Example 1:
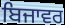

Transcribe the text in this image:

ਬਿਜਾਵਰ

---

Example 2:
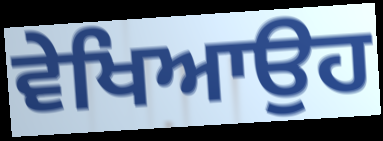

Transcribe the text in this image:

ਵੇਖਿਆਉਹ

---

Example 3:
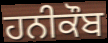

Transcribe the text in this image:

ਹਨੀਕੌਬ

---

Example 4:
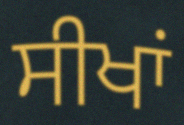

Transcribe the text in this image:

ਸੀਖਾਂ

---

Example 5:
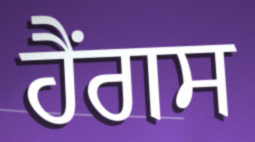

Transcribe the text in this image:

ਹੈਂਗਸ